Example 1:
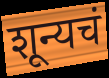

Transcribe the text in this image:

शून्यचं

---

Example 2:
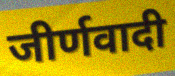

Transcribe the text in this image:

जीर्णवादी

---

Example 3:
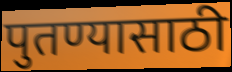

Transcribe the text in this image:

पुतण्यासाठी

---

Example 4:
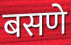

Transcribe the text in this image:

बसणे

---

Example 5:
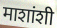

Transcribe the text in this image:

माशांशी